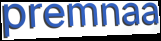
premnaa